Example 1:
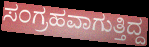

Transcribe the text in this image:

ಸಂಗ್ರಹವಾಗುತ್ತಿದ್ದ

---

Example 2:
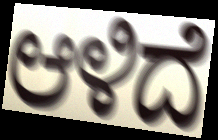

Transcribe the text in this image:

ಆಳಿದೆ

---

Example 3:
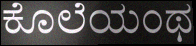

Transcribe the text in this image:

ಕೊಲೆಯಂಥ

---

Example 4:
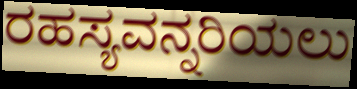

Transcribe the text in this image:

ರಹಸ್ಯವನ್ನರಿಯಲು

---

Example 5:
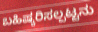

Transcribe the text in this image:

ಬಹಿಷ್ಕರಿಸಲ್ಪಟ್ಟನು